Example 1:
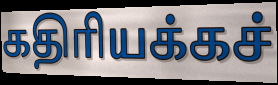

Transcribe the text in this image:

கதிரியக்கச்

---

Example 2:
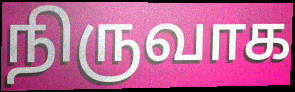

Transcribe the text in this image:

நிருவாக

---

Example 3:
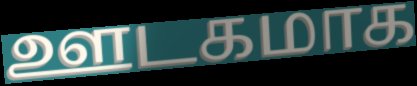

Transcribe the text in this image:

ஊடகமாக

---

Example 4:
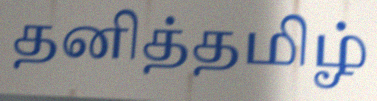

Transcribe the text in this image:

தனித்தமிழ்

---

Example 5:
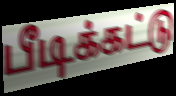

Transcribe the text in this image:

பீடிக்கட்டு